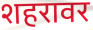
शहरावर